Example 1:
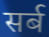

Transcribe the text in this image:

सर्ब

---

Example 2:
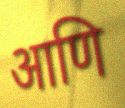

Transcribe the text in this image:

आणि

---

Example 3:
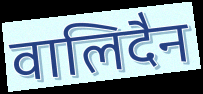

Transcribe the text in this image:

वालिदैन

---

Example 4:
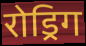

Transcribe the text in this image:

रोड्रिग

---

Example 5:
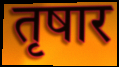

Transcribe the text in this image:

तृषार